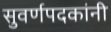
सुवर्णपदकांनी